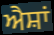
ਐਸ਼ਾਂ